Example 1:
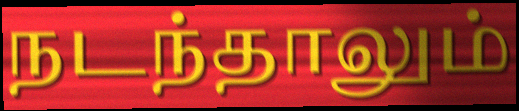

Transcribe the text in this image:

நடந்தாலும்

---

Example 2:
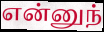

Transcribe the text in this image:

என்னுந்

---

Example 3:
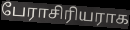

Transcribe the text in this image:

பேராசிரியராக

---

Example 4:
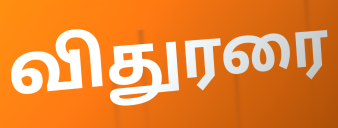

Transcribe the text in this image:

விதுரரை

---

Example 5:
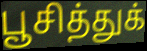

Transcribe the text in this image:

பூசித்துக்